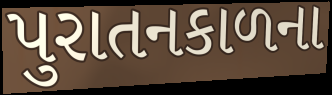
પુરાતનકાળના